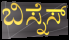
ಬಿಸ್ನೆಸ್